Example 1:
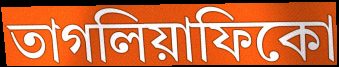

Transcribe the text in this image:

তাগলিয়াফিকো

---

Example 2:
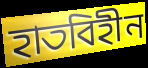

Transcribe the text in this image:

হাতবিহীন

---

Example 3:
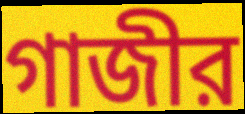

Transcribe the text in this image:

গাজীর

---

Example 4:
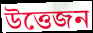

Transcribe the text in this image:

উত্তেজন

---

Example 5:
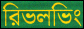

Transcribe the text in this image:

রিভলভিং